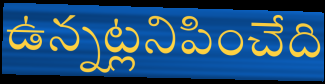
ఉన్నట్లనిపించేది